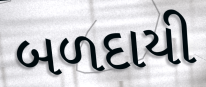
બળદાયી